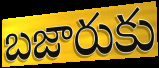
బజారుకు